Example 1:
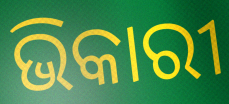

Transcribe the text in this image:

ଭିକାରୀ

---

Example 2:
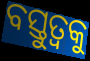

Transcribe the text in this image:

ବସ୍ତୁତ୍ଵକୁ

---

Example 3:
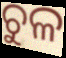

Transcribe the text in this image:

ଚୁଳ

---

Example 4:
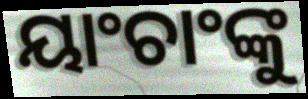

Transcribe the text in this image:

ୟାଂଚାଂଙ୍କୁ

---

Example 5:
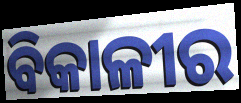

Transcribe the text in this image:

ବିକାଳୀର